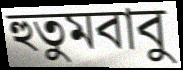
হুতুমবাবু